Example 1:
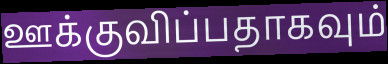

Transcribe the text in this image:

ஊக்குவிப்பதாகவும்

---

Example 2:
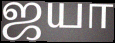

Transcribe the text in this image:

ஜயா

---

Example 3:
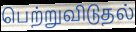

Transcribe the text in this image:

பெற்றுவிடுதல்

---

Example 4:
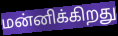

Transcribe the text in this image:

மன்னிக்கிறது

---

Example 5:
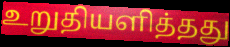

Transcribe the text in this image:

உறுதியளித்தது